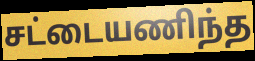
சட்டையணிந்த